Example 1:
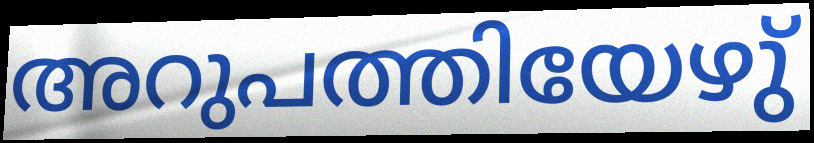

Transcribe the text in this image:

അറുപത്തിയേഴു്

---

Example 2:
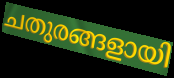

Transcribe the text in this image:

ചതുരങ്ങളായി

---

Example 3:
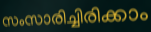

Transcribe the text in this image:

സംസാരിച്ചിരിക്കാം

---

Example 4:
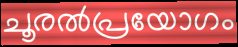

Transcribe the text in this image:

ചൂരൽപ്രയോഗം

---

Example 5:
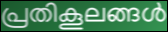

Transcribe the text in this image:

പ്രതികൂലങ്ങൾ